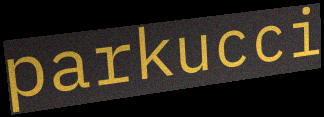
parkucci